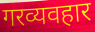
गरव्यवहार